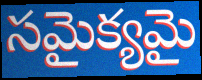
సమైక్యమై